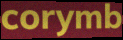
corymb